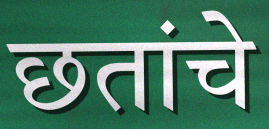
छतांचे